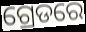
ଗ୍ରେଡରେ